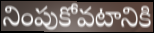
నింపుకోవటానికి